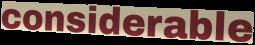
considerable